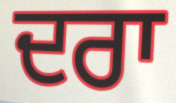
ਦਰਾ